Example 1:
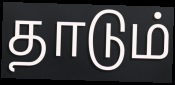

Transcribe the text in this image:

தாடும்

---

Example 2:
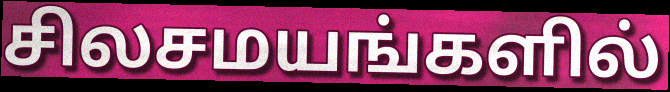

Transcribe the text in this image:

சிலசமயங்களில்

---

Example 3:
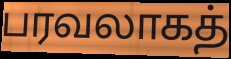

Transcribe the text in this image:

பரவலாகத்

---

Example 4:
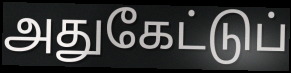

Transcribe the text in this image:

அதுகேட்டுப்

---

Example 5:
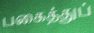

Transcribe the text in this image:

பகைத்துப்